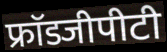
फ्रॉडजीपीटी